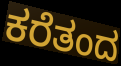
ಕರೆತಂದ